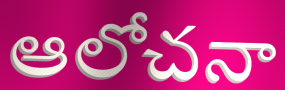
ఆలోచనా